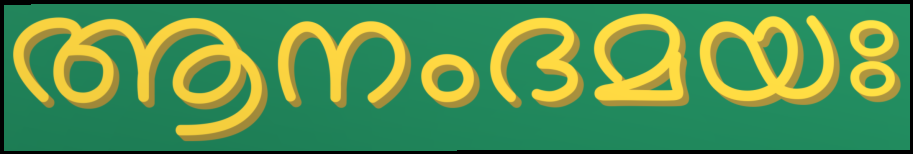
ആനംദമയഃ